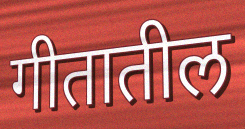
गीतातील